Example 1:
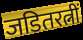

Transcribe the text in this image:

जडितरत्नीं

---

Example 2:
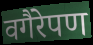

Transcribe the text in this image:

वगैरेपण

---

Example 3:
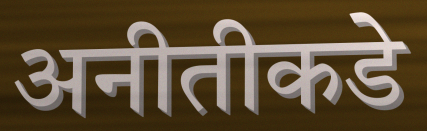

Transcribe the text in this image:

अनीतीकडे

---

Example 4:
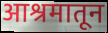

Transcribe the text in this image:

आश्रमातून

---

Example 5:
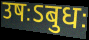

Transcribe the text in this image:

उषःऽबुधः